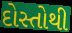
દોસ્તોથી